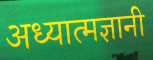
अध्यात्मज्ञानी